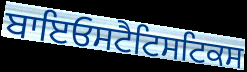
ਬਾਇਓਸਟੈਟਿਸਟਿਕਸ